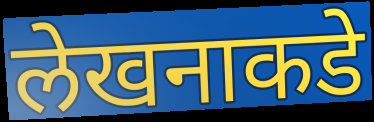
लेखनाकडे